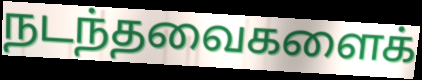
நடந்தவைகளைக்